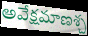
అవేక్షమాణశ్చ